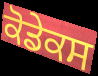
ਕੋਡੇਕਸ